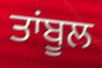
ਤਾਂਬੂਲ